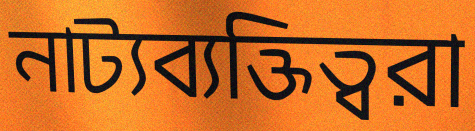
নাট্যব্যক্তিত্বরা